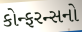
કોન્ફરન્સનો